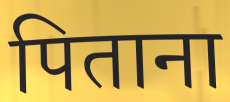
पिताना